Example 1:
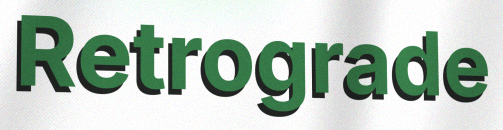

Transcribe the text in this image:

Retrograde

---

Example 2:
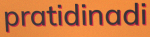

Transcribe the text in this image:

pratidinadi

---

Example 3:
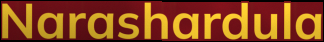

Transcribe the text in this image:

Narashardula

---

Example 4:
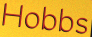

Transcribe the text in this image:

Hobbs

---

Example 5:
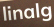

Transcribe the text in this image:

linalg